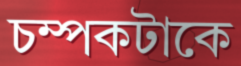
চম্পকটাকে